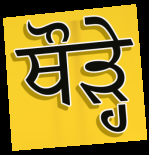
ਥੌੜ੍ਹੇ